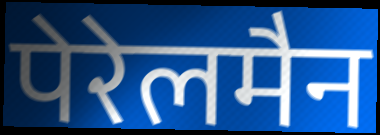
पेरेलमैन